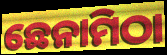
ଛେନାମିଠା